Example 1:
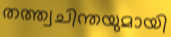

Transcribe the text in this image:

തത്ത്വചിന്തയുമായി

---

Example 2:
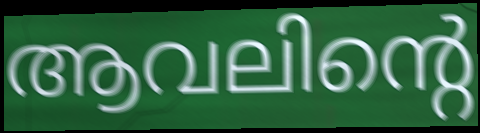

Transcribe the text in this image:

ആവലിന്റെ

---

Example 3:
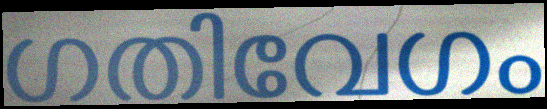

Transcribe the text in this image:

ഗതിവേഗം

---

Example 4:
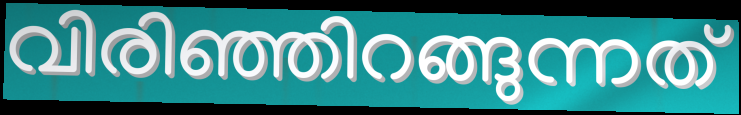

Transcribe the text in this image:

വിരിഞ്ഞിറങ്ങുന്നത്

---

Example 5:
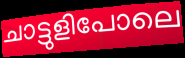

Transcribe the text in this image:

ചാട്ടുളിപോലെ